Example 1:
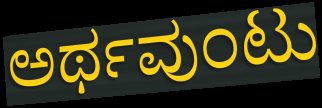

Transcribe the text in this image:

ಅರ್ಥವುಂಟು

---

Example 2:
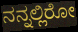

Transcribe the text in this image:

ನನ್ನಲ್ಲಿರೋ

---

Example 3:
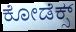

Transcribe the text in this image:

ಕೋಡೆಕ್ಸ್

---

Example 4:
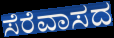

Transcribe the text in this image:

ಸೆರೆವಾಸದ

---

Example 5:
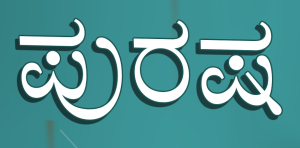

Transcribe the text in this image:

ಪುರಷ